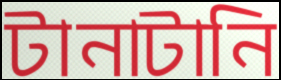
টানাটানি